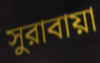
সুরাবায়া